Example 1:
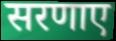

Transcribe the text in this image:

सरणाए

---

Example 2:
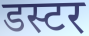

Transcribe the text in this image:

डस्टर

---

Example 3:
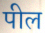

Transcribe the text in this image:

पील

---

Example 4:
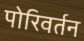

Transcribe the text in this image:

पोरिवर्तन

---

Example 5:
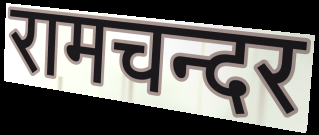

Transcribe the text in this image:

रामचन्दर